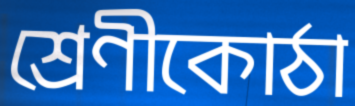
শ্ৰেণীকোঠা